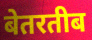
बेतरतीब